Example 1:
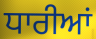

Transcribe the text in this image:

ਧਾਰੀਆਂ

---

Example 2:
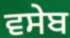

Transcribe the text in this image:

ਵਸੇਬ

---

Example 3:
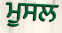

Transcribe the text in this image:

ਮੂਸਲ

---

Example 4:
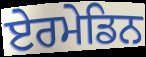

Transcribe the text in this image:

ਏਰਮੇਡਿਨ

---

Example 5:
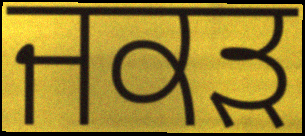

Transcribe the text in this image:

ਜਕਡ਼